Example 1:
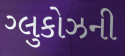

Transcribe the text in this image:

ગ્લુકોઝની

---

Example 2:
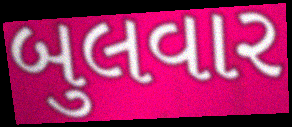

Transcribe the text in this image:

બુલવાર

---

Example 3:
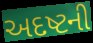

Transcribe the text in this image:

અદષ્ટની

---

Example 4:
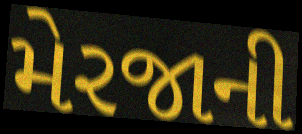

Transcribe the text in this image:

મેરજાની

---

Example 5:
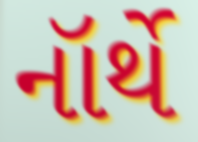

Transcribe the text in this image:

નૉર્થે